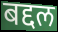
बद्दल